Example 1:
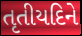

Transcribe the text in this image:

તૃતીયદિને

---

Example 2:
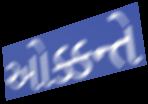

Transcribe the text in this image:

ઓક્કન્તે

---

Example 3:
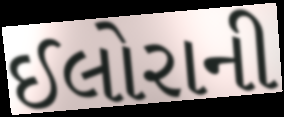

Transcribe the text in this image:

ઈલોરાની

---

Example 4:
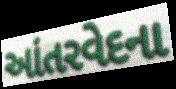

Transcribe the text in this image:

આંતરવેદના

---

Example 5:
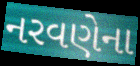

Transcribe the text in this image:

નરવણેના